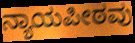
ನ್ಯಾಯಪೀಠವು